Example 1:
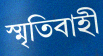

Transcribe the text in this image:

স্মৃতিবাহী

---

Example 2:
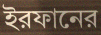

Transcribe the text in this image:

ইরফানের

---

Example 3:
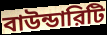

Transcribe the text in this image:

বাউন্ডারিটি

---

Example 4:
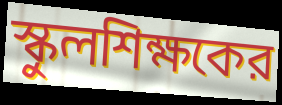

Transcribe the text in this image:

স্কুলশিক্ষকের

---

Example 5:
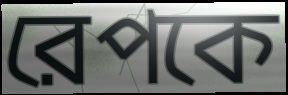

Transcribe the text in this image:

রেপকে